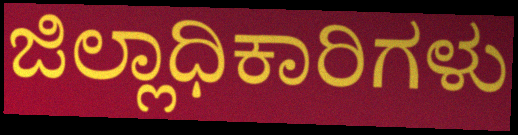
ಜಿಲ್ಲಾಧಿಕಾರಿಗಳು